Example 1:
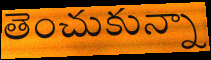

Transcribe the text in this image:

తెంచుకున్నా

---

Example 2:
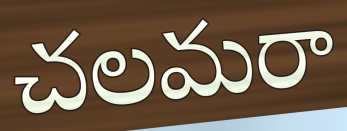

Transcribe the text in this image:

చలమరా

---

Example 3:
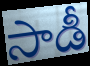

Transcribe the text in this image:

సాడీ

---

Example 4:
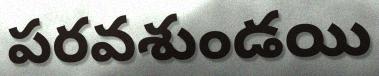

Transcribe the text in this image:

పరవశుండయి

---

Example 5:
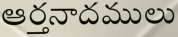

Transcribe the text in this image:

ఆర్తనాదములు